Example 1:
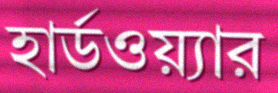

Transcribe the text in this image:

হার্ডওয়্যার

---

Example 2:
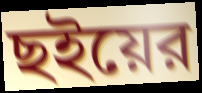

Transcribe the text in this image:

ছইয়ের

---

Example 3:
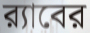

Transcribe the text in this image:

র‍্যাবের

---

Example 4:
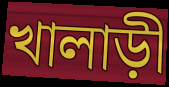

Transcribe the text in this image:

খালাড়ী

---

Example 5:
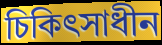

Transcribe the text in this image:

চিকিৎসাধীন